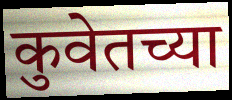
कुवेतच्या